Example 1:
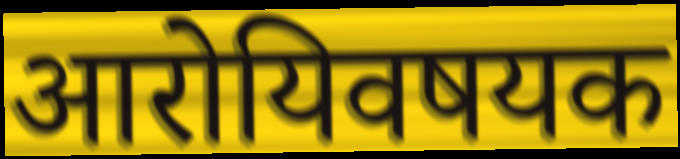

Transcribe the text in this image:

आरोयिवषयक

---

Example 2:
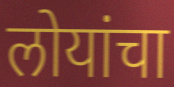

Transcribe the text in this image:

लोयांचा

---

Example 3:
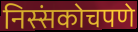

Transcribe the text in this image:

निस्संकोचपणे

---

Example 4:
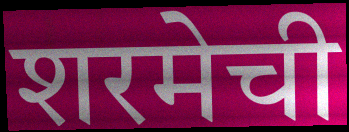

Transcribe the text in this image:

शरमेची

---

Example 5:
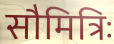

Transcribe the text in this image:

सौमित्रिः